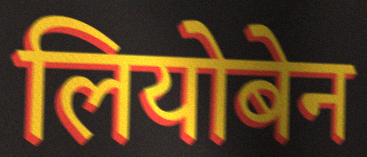
लियोबेन